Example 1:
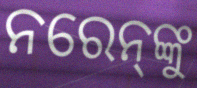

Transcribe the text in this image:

ନରେନ୍‍ଙ୍କୁ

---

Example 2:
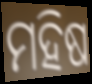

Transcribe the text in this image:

ମହିଷ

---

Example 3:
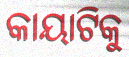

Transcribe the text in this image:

କାୟାଟିକୁ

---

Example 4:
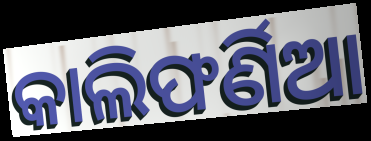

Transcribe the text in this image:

କାଲିଫର୍ଣିଆ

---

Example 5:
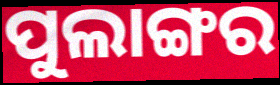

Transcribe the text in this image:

ପୁଲାଙ୍ଗର